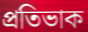
প্ৰতিভাক